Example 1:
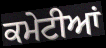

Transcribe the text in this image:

ਕਮੇਟੀਆਂ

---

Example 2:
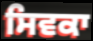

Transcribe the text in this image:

ਸਿਵਕਾ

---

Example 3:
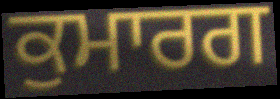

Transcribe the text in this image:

ਕੁਮਾਰਗ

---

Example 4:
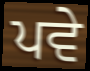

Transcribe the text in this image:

ਪਵੇ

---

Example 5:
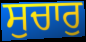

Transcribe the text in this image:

ਸੁਚਾਰੁ